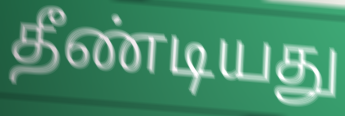
தீண்டியது